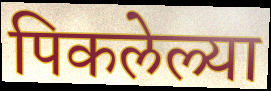
पिकलेल्या